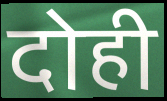
दोही